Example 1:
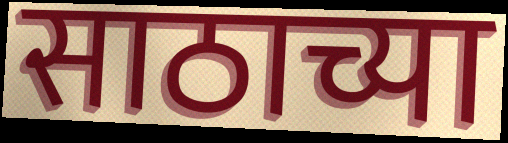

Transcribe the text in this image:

साठाच्या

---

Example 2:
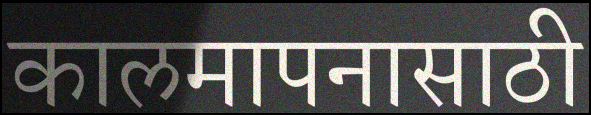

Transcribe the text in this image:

कालमापनासाठी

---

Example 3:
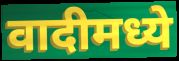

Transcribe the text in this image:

वादीमध्ये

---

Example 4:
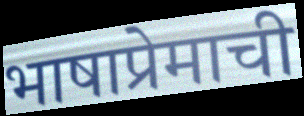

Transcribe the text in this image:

भाषाप्रेमाची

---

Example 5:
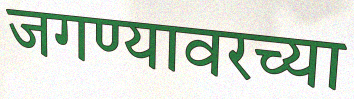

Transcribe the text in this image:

जगण्यावरच्या